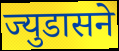
ज्युडासने